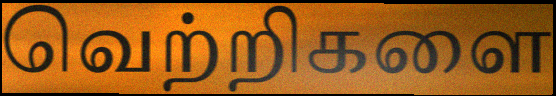
வெற்றிகளை